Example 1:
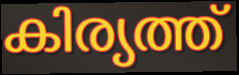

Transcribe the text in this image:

കിര്യത്ത്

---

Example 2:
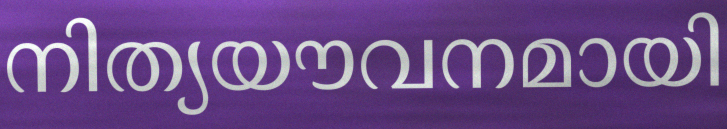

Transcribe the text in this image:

നിത്യയൗവനമായി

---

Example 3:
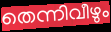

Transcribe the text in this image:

തെന്നിവീഴും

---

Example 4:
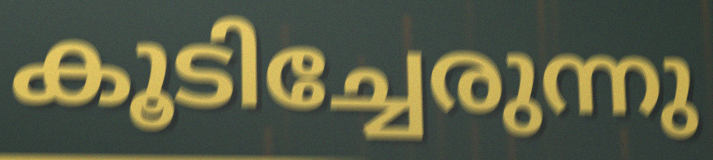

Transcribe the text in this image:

കൂടിച്ചേരുന്നു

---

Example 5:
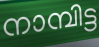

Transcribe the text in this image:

നാമ്പിട്ട